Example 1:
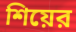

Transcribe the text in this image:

শিয়ের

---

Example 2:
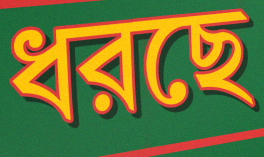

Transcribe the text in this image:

ধরছে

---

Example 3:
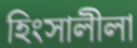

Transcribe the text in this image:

হিংসালীলা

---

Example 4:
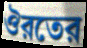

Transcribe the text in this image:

ঔরতের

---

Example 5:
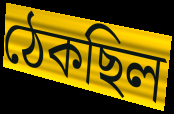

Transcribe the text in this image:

ঠেকছিল